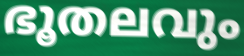
ഭൂതലവും